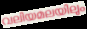
വലിയമലയിലും